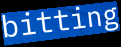
bitting